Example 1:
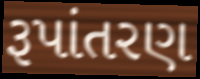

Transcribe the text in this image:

રૂપાંતરણ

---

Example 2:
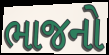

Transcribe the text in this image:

ભાજનો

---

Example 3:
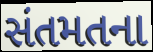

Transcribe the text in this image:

સંતમતના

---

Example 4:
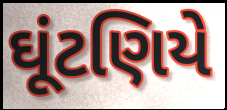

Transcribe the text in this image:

ઘૂંટણિયે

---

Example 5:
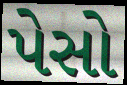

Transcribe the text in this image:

પેસો